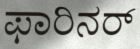
ಫಾರಿನರ್